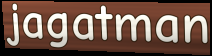
jagatman